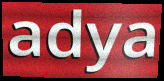
adya